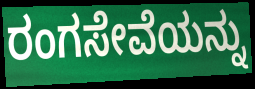
ರಂಗಸೇವೆಯನ್ನು